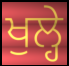
ਖੁਲ੍ਹੇ